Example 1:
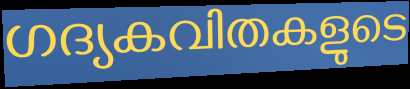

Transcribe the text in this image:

ഗദ്യകവിതകളുടെ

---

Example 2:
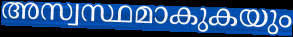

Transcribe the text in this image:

അസ്വസ്ഥമാകുകയും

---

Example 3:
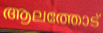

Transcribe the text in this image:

ആലത്തോട്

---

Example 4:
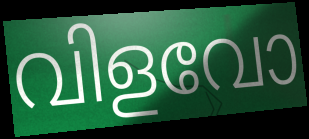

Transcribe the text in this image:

വിളവോ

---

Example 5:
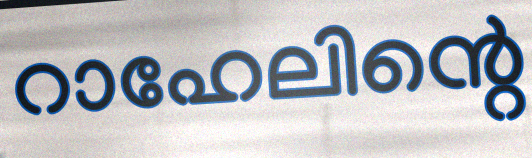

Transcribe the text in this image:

റാഹേലിന്റെ